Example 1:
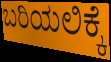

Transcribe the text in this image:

ಬರಿಯಲಿಕ್ಕೆ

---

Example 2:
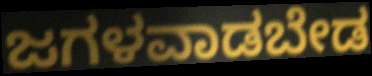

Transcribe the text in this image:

ಜಗಳವಾಡಬೇಡ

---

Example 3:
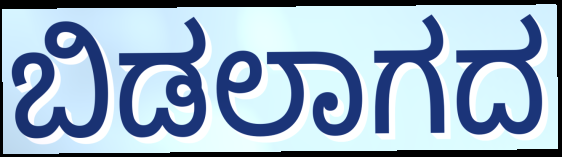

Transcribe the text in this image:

ಬಿಡಲಾಗದ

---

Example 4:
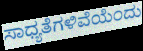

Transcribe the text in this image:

ಸಾಧ್ಯತೆಗಳಿವೆಯೆಂದು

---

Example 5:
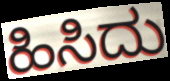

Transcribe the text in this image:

ಹಿಸಿದು